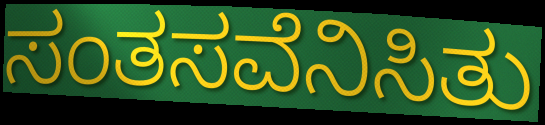
ಸಂತಸವೆನಿಸಿತು